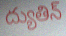
ద్యుతిన్